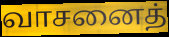
வாசனைத்